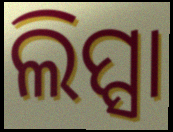
ଲିପ୍ସା